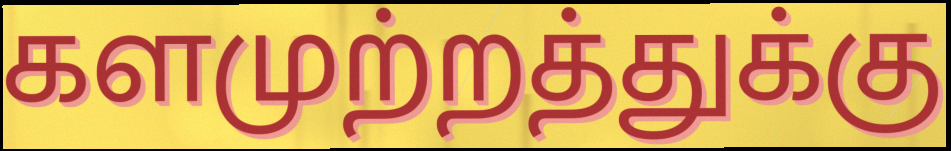
களமுற்றத்துக்கு